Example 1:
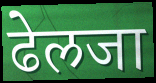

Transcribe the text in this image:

ढेलजा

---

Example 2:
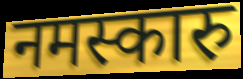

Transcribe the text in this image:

नमस्कारु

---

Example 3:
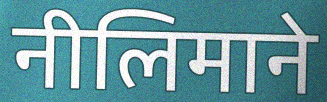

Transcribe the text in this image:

नीलिमाने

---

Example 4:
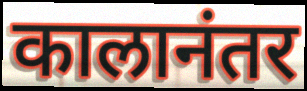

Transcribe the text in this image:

कालानंतर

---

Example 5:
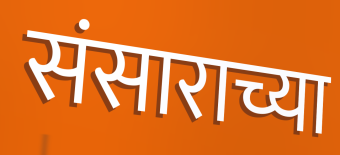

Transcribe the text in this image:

संसाराच्या